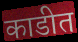
काडीत